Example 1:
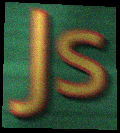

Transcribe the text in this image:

Js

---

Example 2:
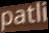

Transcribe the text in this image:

patli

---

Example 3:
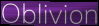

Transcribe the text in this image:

Oblivion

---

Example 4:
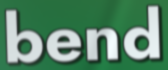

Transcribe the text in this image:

bend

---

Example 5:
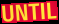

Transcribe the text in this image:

UNTIL